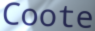
Coote